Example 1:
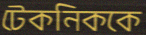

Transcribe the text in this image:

টেকনিককে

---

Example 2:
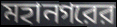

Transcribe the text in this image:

মহানগরের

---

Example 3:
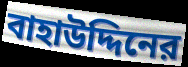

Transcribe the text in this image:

বাহাউদ্দিনের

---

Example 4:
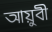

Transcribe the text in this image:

আয়ুবী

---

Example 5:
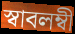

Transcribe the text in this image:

স্বাবলম্বী